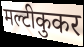
मल्टीकुकर